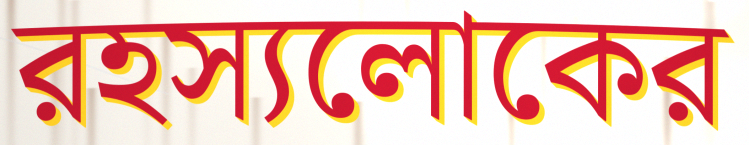
রহস্যলোকের